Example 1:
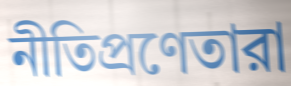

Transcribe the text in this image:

নীতিপ্রণেতারা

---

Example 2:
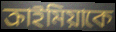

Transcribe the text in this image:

ক্রাইমিয়াকে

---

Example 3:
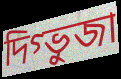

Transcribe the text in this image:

দিগ্ভুজা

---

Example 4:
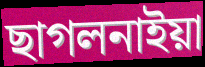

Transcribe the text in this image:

ছাগলনাইয়া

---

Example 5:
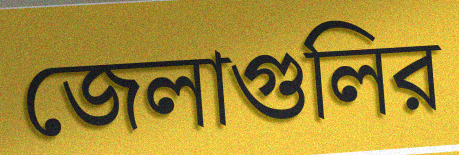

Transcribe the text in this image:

জেলাগুলির